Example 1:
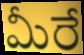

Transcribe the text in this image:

మీరే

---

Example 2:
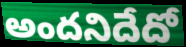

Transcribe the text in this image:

అందనిదేదో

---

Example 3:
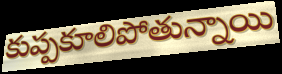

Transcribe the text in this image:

కుప్పకూలిపోతున్నాయి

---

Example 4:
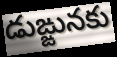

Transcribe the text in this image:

డుఙ్ఙునకు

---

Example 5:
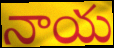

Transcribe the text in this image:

నాయ